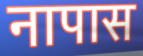
नापास